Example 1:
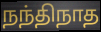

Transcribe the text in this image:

நந்திநாத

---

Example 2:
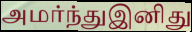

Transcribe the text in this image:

அமர்ந்துஇனிது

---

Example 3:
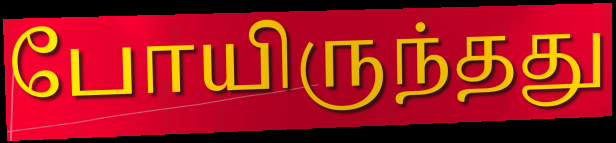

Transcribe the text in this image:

போயிருந்தது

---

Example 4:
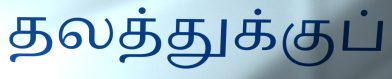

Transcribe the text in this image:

தலத்துக்குப்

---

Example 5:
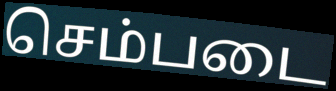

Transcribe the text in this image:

செம்படை